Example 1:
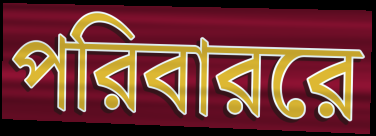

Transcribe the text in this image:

পরিবাররে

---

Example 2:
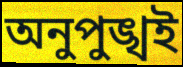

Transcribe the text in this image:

অনুপুঙ্খই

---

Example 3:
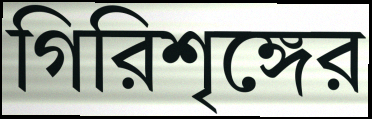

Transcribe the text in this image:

গিরিশৃঙ্গের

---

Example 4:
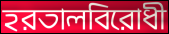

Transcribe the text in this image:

হরতালবিরোধী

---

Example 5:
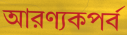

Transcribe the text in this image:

আরণ্যকপর্ব